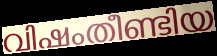
വിഷംതീണ്ടിയ